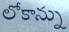
లోకాన్ను